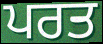
ਪਰਤ